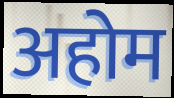
अहोम